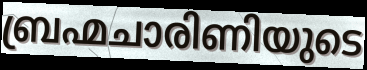
ബ്രഹ്മചാരിണിയുടെ